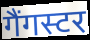
गैंगस्टर